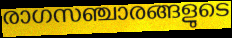
രാഗസഞ്ചാരങ്ങളുടെ